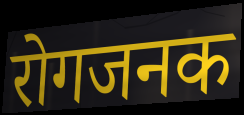
रोगजनक